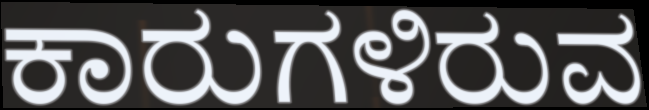
ಕಾರುಗಳಿರುವ